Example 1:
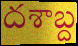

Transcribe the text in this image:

దశాబ్ద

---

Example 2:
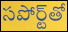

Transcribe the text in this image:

సపోర్ట్‌తో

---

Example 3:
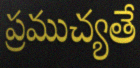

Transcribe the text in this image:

ప్రముచ్యతే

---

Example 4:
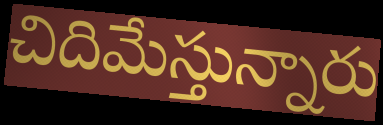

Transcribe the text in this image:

చిదిమేస్తున్నారు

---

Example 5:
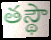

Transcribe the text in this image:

తస్థౌ